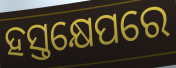
ହସ୍ତକ୍ଷେପରେ